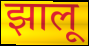
झालू